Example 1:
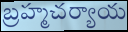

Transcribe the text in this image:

బ్రహ్మచర్యాయ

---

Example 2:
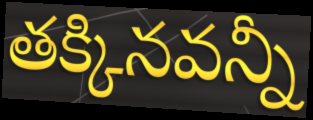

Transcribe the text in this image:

తక్కినవన్నీ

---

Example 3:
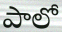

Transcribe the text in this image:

పాలో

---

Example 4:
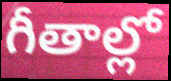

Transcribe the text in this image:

గీతాల్లో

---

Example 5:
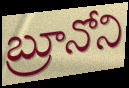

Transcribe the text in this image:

బ్రూనోని